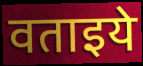
वताइये